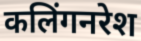
कलिंगनरेश